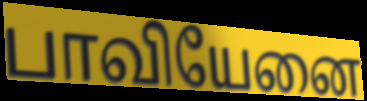
பாவியேனை